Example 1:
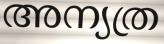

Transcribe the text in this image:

അന്യത്ര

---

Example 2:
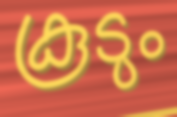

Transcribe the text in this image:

കൂടും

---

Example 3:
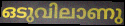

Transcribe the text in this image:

ഒടുവിലാണു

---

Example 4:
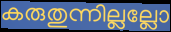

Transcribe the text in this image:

കരുതുന്നില്ലല്ലോ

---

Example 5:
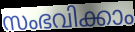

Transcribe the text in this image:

സംഭവിക്കാം